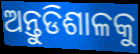
ଅନ୍ତୁଡିଶାଳକୁ